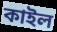
কাইল